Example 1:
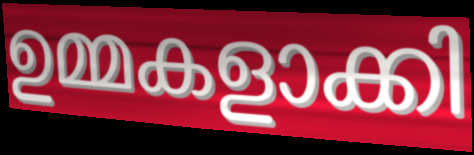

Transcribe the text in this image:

ഉമ്മകളാക്കി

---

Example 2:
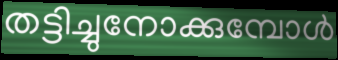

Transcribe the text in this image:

തട്ടിച്ചുനോക്കുമ്പോൾ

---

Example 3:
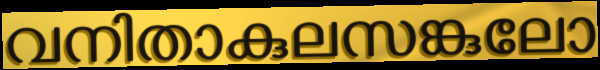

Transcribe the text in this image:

വനിതാകുലസങ്കുലോ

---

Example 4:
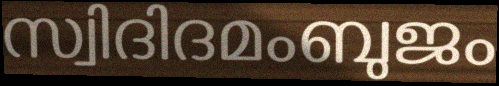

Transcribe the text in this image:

സ്വിദിദമംബുജം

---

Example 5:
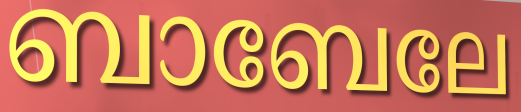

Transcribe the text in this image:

ബാബേലേ